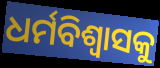
ଧର୍ମବିଶ୍ୱାସକୁ